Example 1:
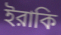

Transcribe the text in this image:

ইরাকি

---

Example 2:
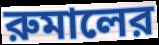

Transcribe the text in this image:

রুমালের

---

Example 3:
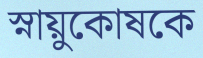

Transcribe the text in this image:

স্নায়ুকোষকে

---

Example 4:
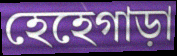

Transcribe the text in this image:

হেহেগাড়া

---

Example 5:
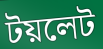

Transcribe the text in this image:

টয়লেট